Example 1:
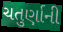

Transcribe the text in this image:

ચતુર્ણાની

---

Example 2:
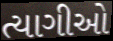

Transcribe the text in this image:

ત્યાગીઓ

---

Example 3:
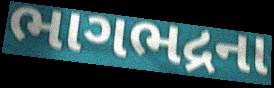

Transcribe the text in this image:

ભાગભદ્રના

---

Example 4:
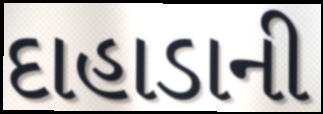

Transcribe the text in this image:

દાહાડાની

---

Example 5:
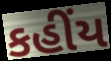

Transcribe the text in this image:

કહીંય